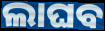
ଲାଘବ